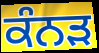
ਕੰਨਡ਼